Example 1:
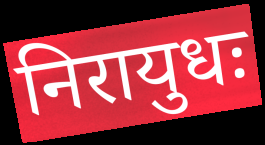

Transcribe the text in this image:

निरायुधः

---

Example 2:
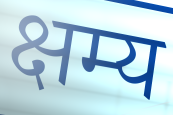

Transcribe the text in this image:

क्षम्य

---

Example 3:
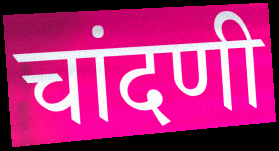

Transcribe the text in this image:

चांदणी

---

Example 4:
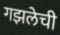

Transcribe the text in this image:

गझलेची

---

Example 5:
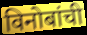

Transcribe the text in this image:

विनोबांची